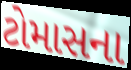
ટોમાસના